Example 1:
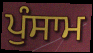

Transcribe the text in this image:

ਪੁੰਸਾਮ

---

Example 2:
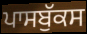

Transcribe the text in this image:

ਪਾਸਬੁੱਕਸ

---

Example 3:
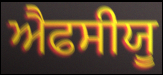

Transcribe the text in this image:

ਐਫਸੀਯੂ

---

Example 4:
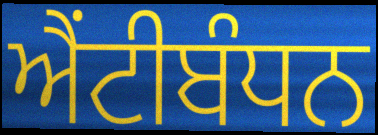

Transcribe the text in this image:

ਐਂਟੀਬੰਧਨ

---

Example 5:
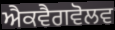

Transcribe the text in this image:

ਐਕਵੈਗਵੋਲਵ